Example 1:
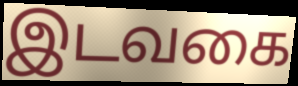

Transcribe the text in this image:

இடவகை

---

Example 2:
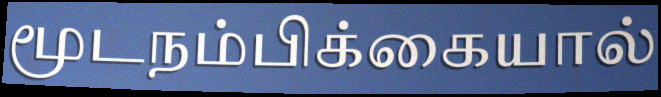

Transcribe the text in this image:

மூடநம்பிக்கையால்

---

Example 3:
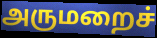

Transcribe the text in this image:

அருமறைச்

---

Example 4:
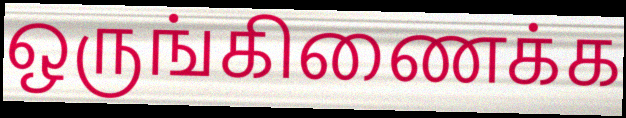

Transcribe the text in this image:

ஒருங்கிணைக்க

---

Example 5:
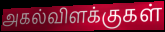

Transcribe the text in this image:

அகல்விளக்குகள்